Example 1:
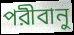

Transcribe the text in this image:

পরীবানু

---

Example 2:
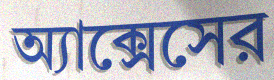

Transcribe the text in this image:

অ্যাক্সেসের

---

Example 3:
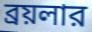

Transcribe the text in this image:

ব্রয়লার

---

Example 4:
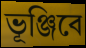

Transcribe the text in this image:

ভূঞ্জিবে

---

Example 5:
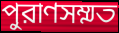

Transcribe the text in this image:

পুরাণসম্মত